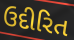
ઉદીરિત